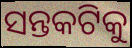
ସନ୍ତକଟିକୁ